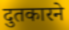
दुतकारने